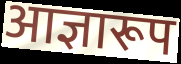
आज्ञारूप